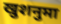
खुशनुमा